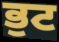
ਭੁਟ